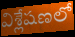
విశ్లేషణలో